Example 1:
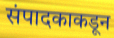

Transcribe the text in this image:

संपादकाकडून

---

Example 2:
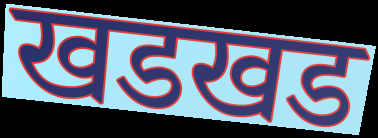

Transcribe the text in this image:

खडखड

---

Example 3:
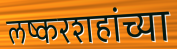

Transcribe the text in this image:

लष्करशहांच्या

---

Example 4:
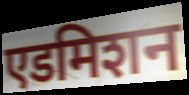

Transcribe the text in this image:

एडमिशन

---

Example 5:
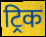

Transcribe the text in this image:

ट्रिक